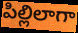
పిల్లిలాగా